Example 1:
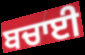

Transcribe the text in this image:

ਬਚਾਈ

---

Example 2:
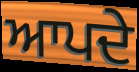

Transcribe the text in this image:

ਆਪਦੇ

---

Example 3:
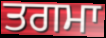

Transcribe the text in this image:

ਤਗਮਾ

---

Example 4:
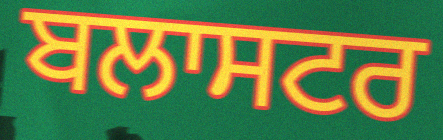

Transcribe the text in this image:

ਬਲਾਸਟਰ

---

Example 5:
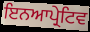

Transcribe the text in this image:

ਇਨਆਪ੍ਰੇਟਿਵ